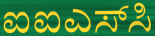
ಐಐಎಸ್‌ಸಿ